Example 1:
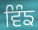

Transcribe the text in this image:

ਵਿੰਙ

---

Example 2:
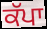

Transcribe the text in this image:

ਕੱਪਾ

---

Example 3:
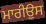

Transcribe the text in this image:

ਮਾਰੀਉਸ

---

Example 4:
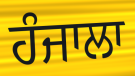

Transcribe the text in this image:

ਹੰਜਾਲਾ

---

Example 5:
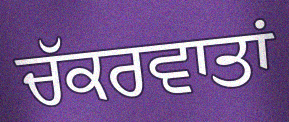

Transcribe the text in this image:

ਚੱਕਰਵਾਤਾਂ